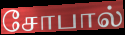
சோபால்